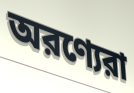
অরণ্যেরা